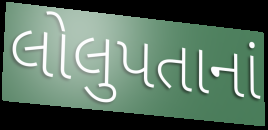
લોલુપતાનાં